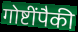
गोष्टींपैकी